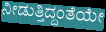
ನೀಡುತ್ತಿದ್ದಂತೆಯೇ